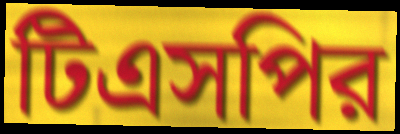
টিএসপির